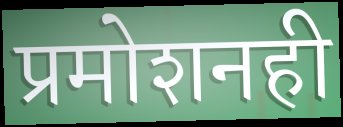
प्रमोशनही